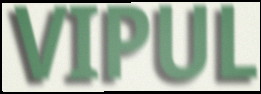
VIPUL